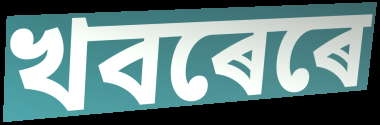
খবৰেৰে